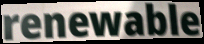
renewable